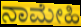
ನಾಮೇಹಿ